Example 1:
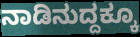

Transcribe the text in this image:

ನಾಡಿನುದ್ದಕ್ಕೂ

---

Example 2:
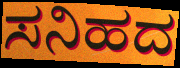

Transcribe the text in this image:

ಸನಿಹದ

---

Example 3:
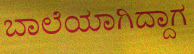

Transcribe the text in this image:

ಬಾಲೆಯಾಗಿದ್ದಾಗ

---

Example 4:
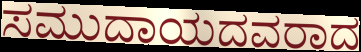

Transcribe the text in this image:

ಸಮುದಾಯದವರಾದ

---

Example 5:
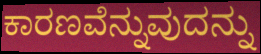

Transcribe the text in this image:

ಕಾರಣವೆನ್ನುವುದನ್ನು